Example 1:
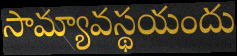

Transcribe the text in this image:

సామ్యావస్థయందు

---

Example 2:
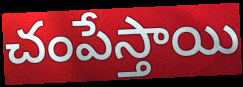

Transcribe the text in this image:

చంపేస్తాయి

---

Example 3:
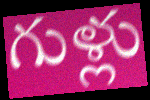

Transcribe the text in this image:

గుళ్లు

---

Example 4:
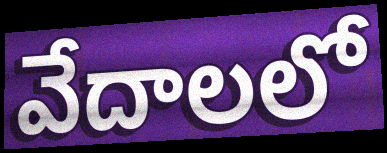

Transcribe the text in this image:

వేదాలలో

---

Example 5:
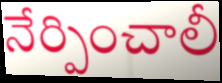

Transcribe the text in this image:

నేర్పించాలీ